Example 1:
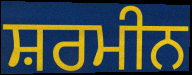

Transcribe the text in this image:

ਸ਼ਰਮੀਨ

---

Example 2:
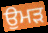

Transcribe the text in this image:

ਉਮੜ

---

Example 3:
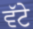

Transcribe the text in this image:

ਵੱਟੇ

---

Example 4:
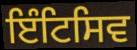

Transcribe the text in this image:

ਇੰਟਿਸਿਵ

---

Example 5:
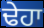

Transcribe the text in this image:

ਢੇਹਾ